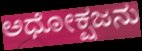
ಅಧೋಕ್ಷಜನು